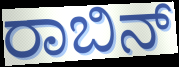
ರಾಬಿನ್